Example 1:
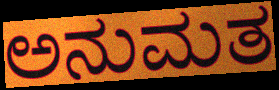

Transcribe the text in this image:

ಅನುಮತ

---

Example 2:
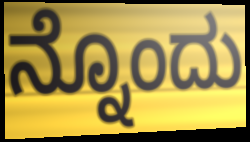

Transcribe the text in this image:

ನ್ನೊಂದು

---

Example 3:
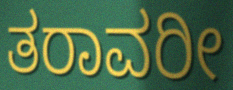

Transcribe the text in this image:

ತರಾವರೀ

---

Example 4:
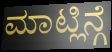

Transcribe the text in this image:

ಮಾಟ್ಲಿನ್ಗೆ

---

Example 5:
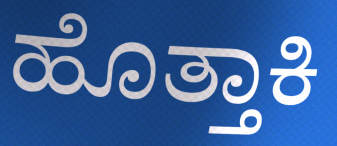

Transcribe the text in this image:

ಹೊತ್ತಾಕಿ